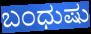
ಬಂಧುಷು